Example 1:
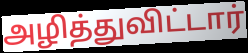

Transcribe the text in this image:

அழித்துவிட்டார்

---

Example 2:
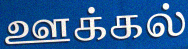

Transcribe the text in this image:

ஊக்கல்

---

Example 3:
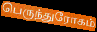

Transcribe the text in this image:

பெருந்துரோகம்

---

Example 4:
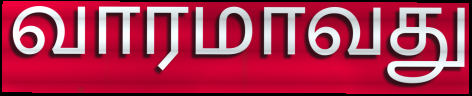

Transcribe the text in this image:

வாரமாவது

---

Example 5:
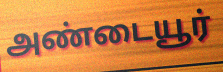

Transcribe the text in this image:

அண்டையூர்